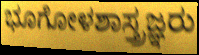
ಭೂಗೋಳಶಾಸ್ತ್ರಜ್ಞರು